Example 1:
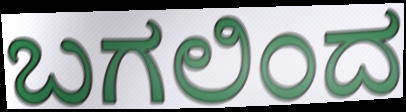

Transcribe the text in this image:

ಬಗಲಿಂದ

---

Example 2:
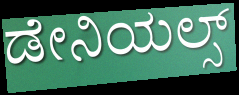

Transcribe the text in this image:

ಡೇನಿಯಲ್ಸ್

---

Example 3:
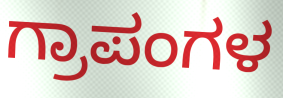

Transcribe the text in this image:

ಗ್ರಾಪಂಗಳ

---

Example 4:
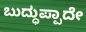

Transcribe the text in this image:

ಬುದ್ಧುಪ್ಪಾದೇ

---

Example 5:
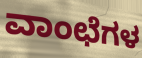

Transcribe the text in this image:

ವಾಂಛೆಗಳ